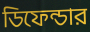
ডিফেন্ডার